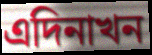
এদিনাখন